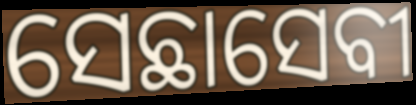
ସେଛାସେବୀ